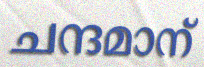
ചന്ദമാന്